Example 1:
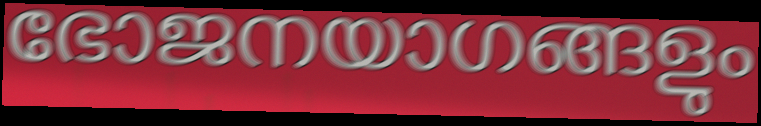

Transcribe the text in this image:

ഭോജനയാഗങ്ങളും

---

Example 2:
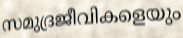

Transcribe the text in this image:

സമുദ്രജീവികളെയും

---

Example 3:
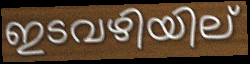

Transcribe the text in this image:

ഇടവഴിയില്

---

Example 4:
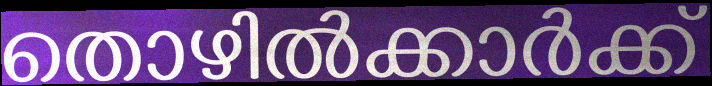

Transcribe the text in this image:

തൊഴിൽക്കാർക്ക്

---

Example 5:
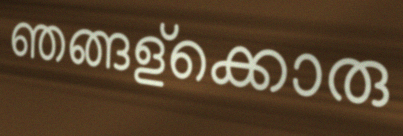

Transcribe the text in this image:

ഞങ്ങള്ക്കൊരു